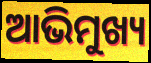
ଆଭିମୁଖ୍ୟ